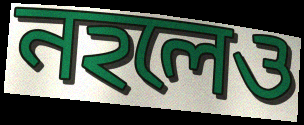
নহলেও